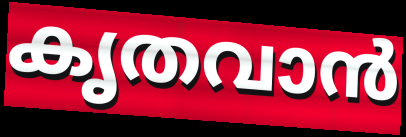
കൃതവാൻ